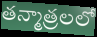
తన్మాత్రలలో